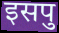
इसपु